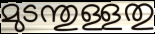
മുടന്തുള്ളതു